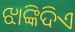
ଝାଙ୍କିଦିଏ